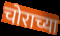
चोराच्या